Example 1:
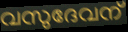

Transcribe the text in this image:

വസുദേവന്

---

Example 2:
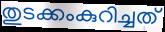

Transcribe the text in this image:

തുടക്കംകുറിച്ചത്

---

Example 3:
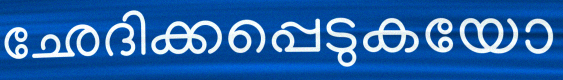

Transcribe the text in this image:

ഛേദിക്കപ്പെടുകയോ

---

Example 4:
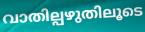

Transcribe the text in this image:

വാതില്പഴുതിലൂടെ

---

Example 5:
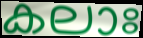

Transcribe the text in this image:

കലാഃ